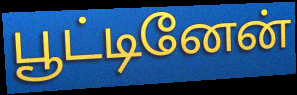
பூட்டினேன்